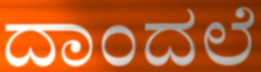
ದಾಂದಲೆ